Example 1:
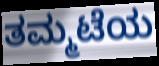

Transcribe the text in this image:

ತಮ್ಮಟೆಯ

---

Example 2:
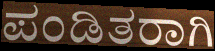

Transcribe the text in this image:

ಪಂಡಿತರಾಗಿ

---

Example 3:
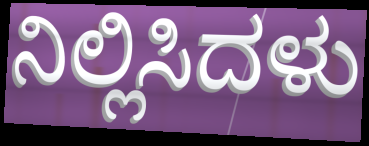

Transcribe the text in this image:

ನಿಲ್ಲಿಸಿದಳು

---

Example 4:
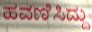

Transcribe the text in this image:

ಹವಣಿಸಿದ್ದು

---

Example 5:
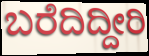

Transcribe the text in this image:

ಬರೆದಿದ್ದೀರಿ